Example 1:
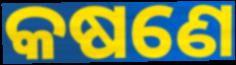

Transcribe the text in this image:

କଷଣେ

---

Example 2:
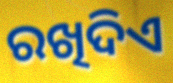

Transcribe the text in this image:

ରଖିଦିଏ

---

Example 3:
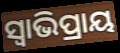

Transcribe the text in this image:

ସ୍ଵାଭିପ୍ରାୟ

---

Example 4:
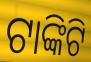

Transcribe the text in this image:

ଟାଙ୍କିଟି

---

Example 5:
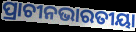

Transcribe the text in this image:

ପ୍ରାଚୀନଭାରତୀୟା